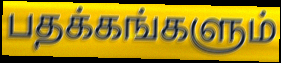
பதக்கங்களும்